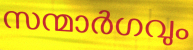
സന്മാർഗവും